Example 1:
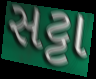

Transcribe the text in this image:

સટ્ટા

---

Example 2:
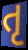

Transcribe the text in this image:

તૃ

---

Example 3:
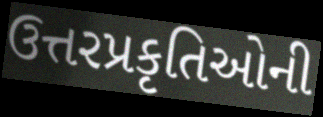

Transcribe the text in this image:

ઉત્તરપ્રકૃતિઓની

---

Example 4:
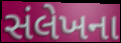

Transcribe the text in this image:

સંલેખના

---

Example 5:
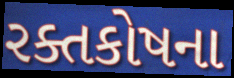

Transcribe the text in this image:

રક્તકોષના